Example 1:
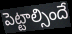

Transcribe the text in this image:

పెట్టాల్సిందే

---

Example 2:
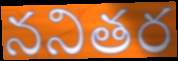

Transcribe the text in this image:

ననితర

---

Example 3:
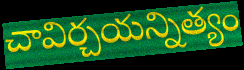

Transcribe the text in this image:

చావిర్చయన్నిత్యం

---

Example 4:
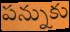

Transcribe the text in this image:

పన్నుకు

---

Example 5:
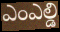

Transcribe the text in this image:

ఎంఎల్డి